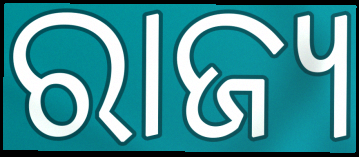
ରାଜ୍ଯ